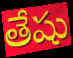
తేషు